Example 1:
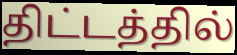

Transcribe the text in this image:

திட்டத்தில்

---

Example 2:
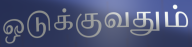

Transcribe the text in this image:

ஒடுக்குவதும்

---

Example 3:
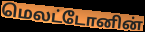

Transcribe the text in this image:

மெலட்டோனின்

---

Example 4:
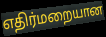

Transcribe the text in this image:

எதிர்மறையான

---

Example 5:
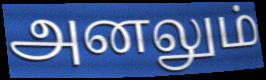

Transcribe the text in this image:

அனலும்